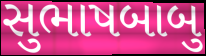
સુભાષબાબુ